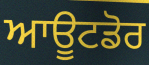
ਆਊਟਡੋਰ